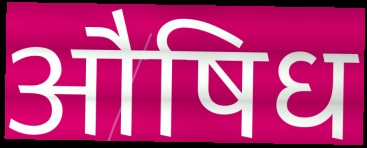
औषिध